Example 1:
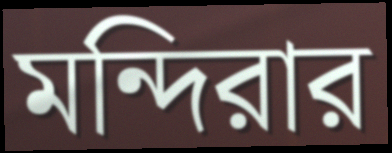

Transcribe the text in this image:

মন্দিরার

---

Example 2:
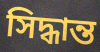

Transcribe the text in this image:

সিদ্ধান্ত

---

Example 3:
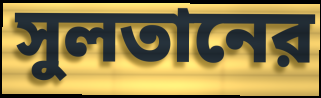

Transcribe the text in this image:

সুলতানের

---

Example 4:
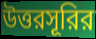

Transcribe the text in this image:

উত্তরসূরির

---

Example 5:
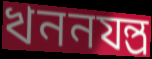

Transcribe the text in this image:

খননযন্ত্র